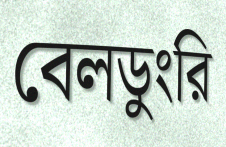
বেলডুংরি